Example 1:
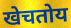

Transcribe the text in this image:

खेचतोय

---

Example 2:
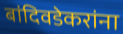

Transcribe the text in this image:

बांदिवडेकरांना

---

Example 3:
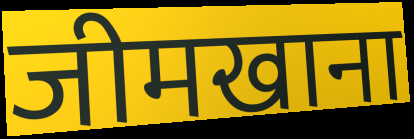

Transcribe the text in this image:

जीमखाना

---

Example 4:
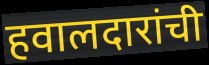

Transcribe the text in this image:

हवालदारांची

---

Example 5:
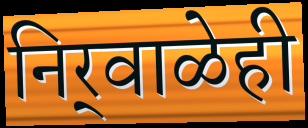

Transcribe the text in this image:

निर्वाळेही